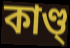
কাণ্ড্